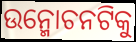
ଉନ୍ମୋଚନଟିକୁ